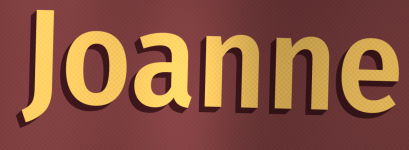
Joanne